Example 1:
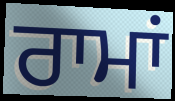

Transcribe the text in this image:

ਰਾਮਾਂ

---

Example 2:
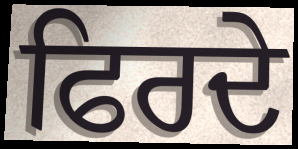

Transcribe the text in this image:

ਫਿਰਦੇ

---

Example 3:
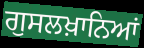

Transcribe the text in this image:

ਗੁਸਲਖ਼ਾਨਿਆਂ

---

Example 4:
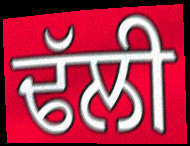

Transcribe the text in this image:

ਢੱਲੀ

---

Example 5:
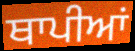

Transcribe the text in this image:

ਥਾਪੀਆਂ